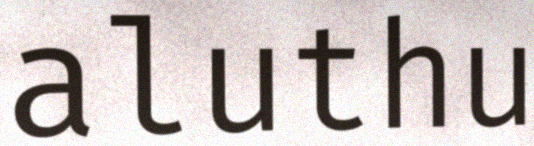
aluthu